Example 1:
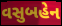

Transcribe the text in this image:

વસુબહેન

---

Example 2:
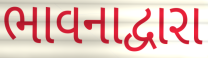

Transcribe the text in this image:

ભાવનાદ્વારા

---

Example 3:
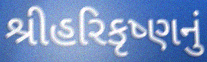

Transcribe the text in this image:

શ્રીહરિકૃષ્ણનું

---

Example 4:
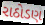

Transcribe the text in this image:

રાઠોડણ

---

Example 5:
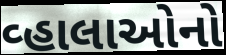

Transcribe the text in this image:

વ્હાલાઓનો